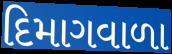
દિમાગવાળા